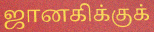
ஜானகிக்குக்